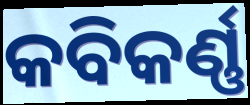
କବିକର୍ଣ୍ଣ